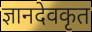
ज्ञानदेवकृत